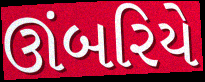
ઊંબરિયે